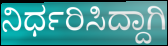
ನಿರ್ಧರಿಸಿದ್ದಾಗಿ